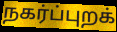
நகர்ப்புறக்